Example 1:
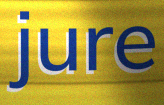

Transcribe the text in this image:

jure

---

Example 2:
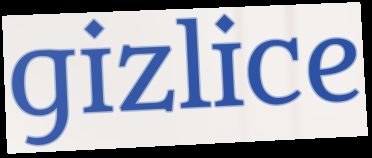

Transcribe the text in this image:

gizlice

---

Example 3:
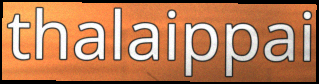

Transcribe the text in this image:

thalaippai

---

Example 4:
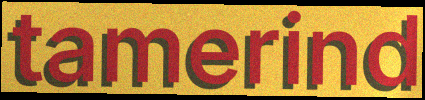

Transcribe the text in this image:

tamerind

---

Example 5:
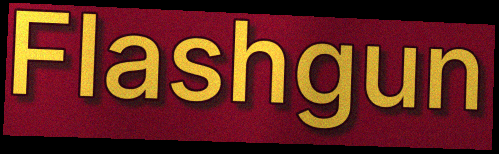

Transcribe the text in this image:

Flashgun